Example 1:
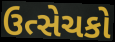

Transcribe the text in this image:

ઉત્સેચકો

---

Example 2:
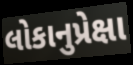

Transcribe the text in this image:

લોકાનુપ્રેક્ષા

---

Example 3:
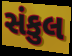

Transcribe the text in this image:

સંકુલ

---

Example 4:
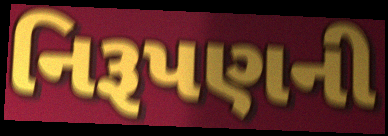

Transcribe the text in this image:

નિરૂપણની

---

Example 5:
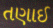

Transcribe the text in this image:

તણાઈ